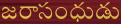
జరాసంధుడు